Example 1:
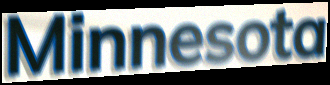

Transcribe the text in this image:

Minnesota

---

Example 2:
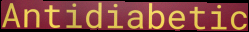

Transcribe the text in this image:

Antidiabetic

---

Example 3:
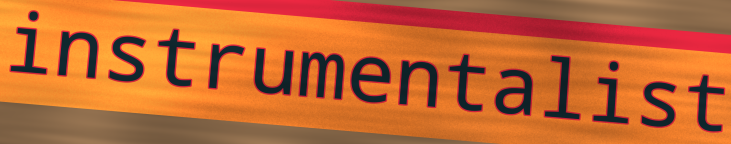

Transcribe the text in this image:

instrumentalist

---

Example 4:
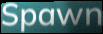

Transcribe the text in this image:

Spawn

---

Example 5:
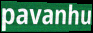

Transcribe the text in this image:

pavanhu